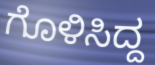
ಗೊಳಿಸಿದ್ದ